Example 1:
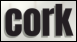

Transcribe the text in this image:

cork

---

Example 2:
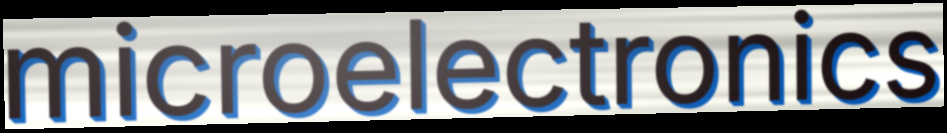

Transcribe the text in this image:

microelectronics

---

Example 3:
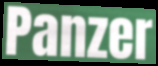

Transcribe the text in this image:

Panzer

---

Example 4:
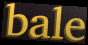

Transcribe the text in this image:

bale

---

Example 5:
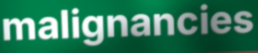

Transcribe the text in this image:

malignancies